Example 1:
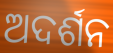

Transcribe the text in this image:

ଅଦର୍ଶନ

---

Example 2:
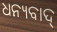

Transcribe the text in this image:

ଧନ୍ୟବାଦ୍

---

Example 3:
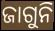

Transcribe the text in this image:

ଜାଗୁନି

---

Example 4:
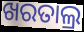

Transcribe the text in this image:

ଖରତାଲ୍ର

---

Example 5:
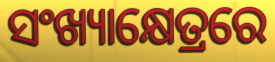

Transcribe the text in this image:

ସଂଖ୍ୟାକ୍ଷେତ୍ରରେ